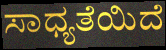
ಸಾಧ್ಯತೆಯಿದೆ